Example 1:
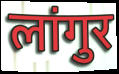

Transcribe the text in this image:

लांगुर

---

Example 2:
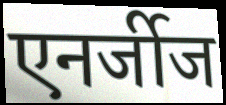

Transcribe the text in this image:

एनर्जीज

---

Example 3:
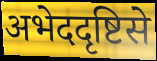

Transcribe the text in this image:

अभेददृष्टिसे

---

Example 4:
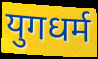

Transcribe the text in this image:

युगधर्म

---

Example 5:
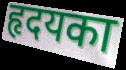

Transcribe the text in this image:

हृदयका